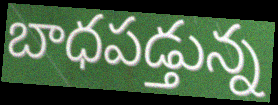
బాధపడ్తున్న